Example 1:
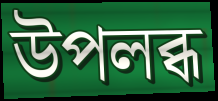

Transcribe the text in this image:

উপলব্ধ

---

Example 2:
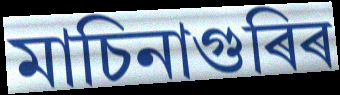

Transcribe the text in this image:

মাচিনাগুৰিৰ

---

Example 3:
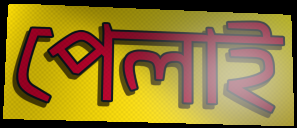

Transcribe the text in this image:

পেলাই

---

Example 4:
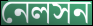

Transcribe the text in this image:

নেলসন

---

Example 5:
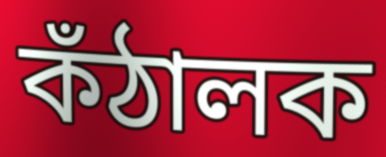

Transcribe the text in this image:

কঁঠালক